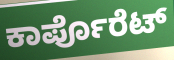
ಕಾರ್ಪೊರೆಟ್